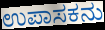
ಉಪಾಸಕನು